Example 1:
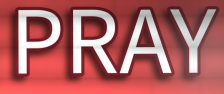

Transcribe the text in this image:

PRAY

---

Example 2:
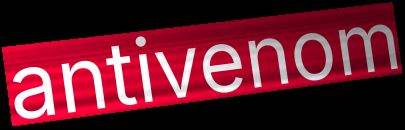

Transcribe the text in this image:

antivenom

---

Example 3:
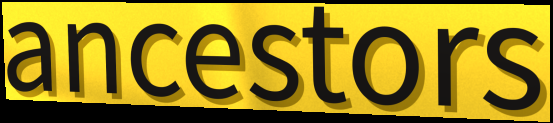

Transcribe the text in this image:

ancestors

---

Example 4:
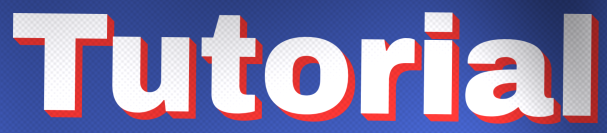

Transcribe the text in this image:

Tutorial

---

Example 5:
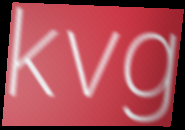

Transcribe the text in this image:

kvg